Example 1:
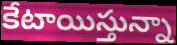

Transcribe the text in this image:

కేటాయిస్తున్నా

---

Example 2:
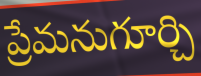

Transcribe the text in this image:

ప్రేమనుగూర్చి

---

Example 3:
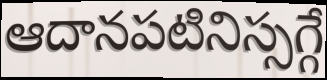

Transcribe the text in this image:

ఆదానపటినిస్సగ్గే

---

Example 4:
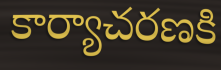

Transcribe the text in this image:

కార్యాచరణకి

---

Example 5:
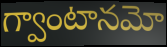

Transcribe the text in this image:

గ్వాంటానమో